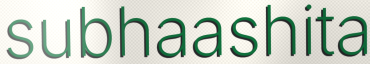
subhaashita